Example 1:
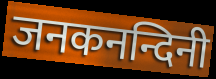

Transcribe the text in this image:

जनकनन्दिनी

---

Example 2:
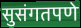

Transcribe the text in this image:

सुसंगतपणे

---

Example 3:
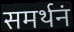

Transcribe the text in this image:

समर्थनं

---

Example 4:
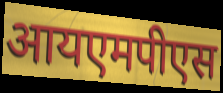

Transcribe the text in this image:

आयएमपीएस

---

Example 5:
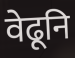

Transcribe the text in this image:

वेढूनि